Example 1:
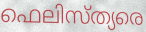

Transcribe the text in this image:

ഫെലിസ്ത്യരെ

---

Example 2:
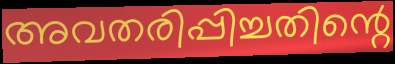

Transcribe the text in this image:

അവതരിപ്പിച്ചതിന്റെ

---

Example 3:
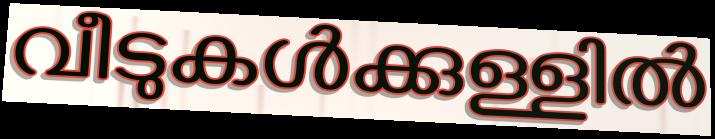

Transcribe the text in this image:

വീടുകൾക്കുള്ളിൽ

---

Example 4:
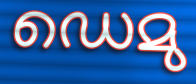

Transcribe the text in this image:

ഡെമു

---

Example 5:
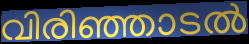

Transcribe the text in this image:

വിരിഞ്ഞാടൽ